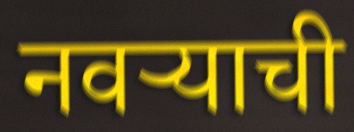
नवऱ्याची